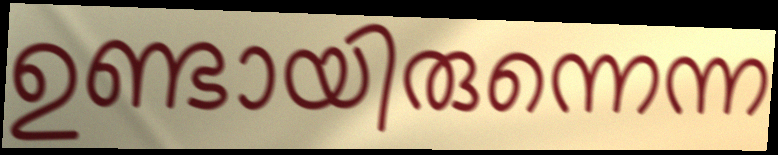
ഉണ്ടായിരുന്നെന്ന